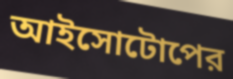
আইসোটোপের